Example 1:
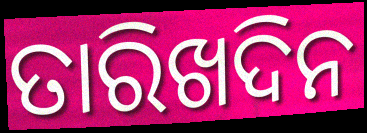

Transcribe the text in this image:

ତାରିଖଦିନ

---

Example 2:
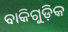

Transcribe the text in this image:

ବାକିଗୁଡ଼ିକ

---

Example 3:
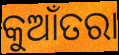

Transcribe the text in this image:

କୁଆଁତରା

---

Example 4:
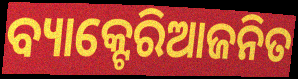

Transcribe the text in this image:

ବ୍ୟାକ୍ଟେରିଆଜନିତ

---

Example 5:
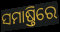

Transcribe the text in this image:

ସମାଷ୍ତିରେ